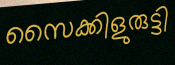
സൈക്കിളുരുട്ടി